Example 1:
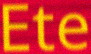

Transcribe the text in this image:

Ete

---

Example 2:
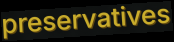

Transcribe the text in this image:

preservatives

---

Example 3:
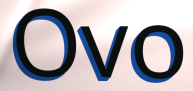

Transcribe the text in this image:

Ovo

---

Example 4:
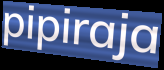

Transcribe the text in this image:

pipiraja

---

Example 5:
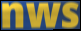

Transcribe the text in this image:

nws